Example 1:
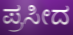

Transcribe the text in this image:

ಪ್ರಸೀದ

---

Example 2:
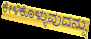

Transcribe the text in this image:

ಕೇಳಿಕೊಳ್ಳುವುದನ್ನು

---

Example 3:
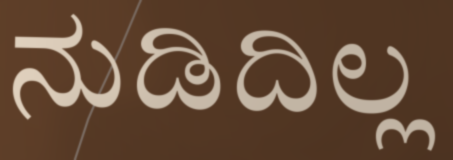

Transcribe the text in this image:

ನುಡಿದಿಲ್ಲ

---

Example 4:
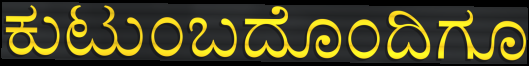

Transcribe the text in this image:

ಕುಟುಂಬದೊಂದಿಗೂ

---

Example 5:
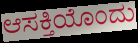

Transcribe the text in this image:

ಆಸಕ್ತಿಯೊಂದು